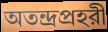
অতন্দ্রপ্রহরী